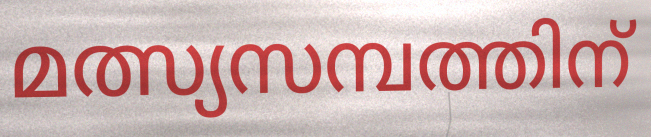
മത്സ്യസമ്പത്തിന്